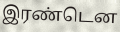
இரண்டென